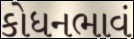
કોધનભાવં